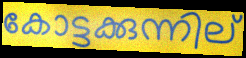
കോട്ടക്കുന്നില്